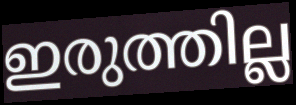
ഇരുത്തില്ല